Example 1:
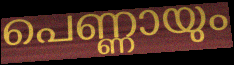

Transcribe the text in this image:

പെണ്ണായും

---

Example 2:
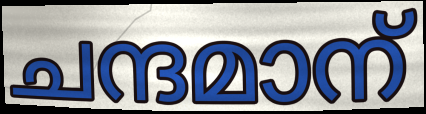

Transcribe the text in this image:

ചന്ദമാന്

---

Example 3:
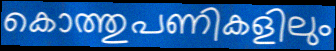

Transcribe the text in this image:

കൊത്തുപണികളിലും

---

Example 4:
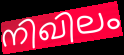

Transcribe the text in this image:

നിഖിലം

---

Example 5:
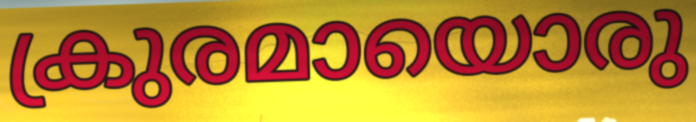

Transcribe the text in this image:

ക്രുരമായൊരു